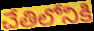
చేతిలోనికి